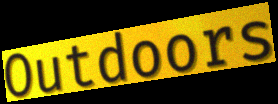
Outdoors